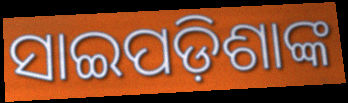
ସାଇପଡ଼ିଶାଙ୍କ